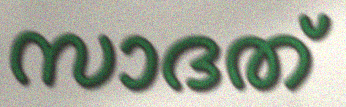
സാദത്